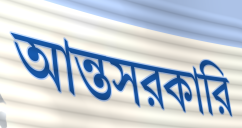
আন্তসরকারি